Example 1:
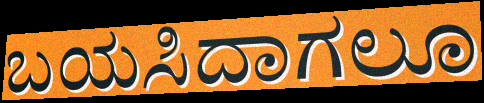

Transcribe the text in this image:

ಬಯಸಿದಾಗಲೂ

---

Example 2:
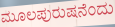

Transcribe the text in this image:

ಮೂಲಪುರುಷನೆಂದು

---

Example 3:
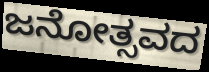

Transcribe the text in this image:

ಜನೋತ್ಸವದ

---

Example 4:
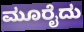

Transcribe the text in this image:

ಮೂರೈದು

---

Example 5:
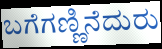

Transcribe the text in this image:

ಬಗೆಗಣ್ಣಿನೆದುರು